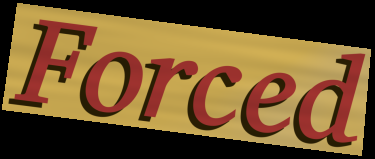
Forced